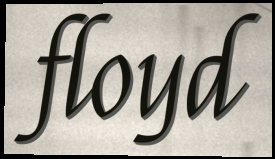
floyd